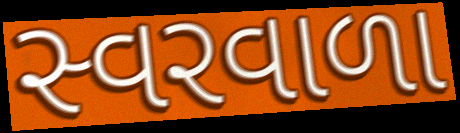
સ્વરવાળા